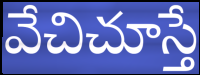
వేచిచూస్తే